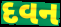
દવન